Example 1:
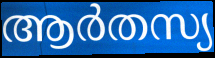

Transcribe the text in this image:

ആർതസ്യ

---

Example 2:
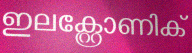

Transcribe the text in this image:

ഇലക്റ്റ്രോണിക്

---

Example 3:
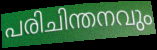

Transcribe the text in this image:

പരിചിന്തനവും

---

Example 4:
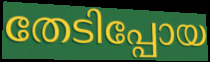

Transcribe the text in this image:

തേടിപ്പോയ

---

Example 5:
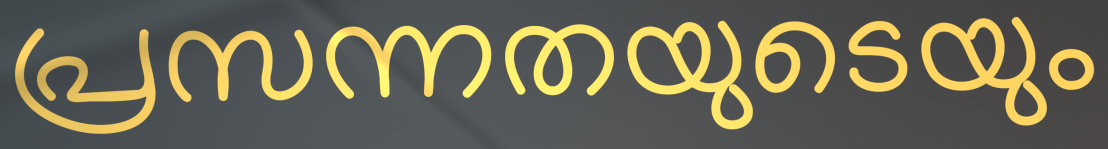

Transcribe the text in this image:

പ്രസന്നതയുടെയും